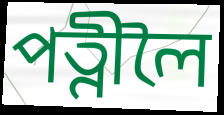
পত্নীলৈ